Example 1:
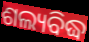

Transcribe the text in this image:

ଶଲ୍ୟବିଦ୍ଧ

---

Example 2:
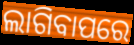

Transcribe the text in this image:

ଲାଗିବାପରେ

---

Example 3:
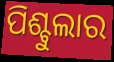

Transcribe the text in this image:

ପିଶ୍ଚୁଲାର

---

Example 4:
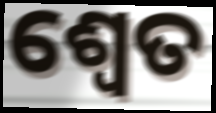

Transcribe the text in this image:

ଶ୍ଵେତ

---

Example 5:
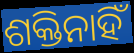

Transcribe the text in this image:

ଶକ୍ତିନାହିଁ